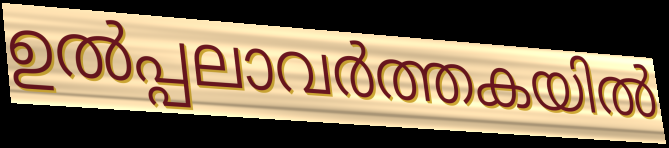
ഉൽപ്പലാവർത്തകയിൽ